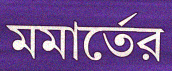
মমার্তের